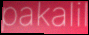
pakalil